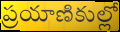
ప్రయాణికుల్లో